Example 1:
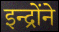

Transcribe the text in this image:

इन्द्रोंने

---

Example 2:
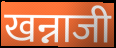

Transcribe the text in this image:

खन्नाजी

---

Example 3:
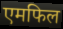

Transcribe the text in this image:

एमफिल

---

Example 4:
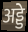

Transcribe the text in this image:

अड्डे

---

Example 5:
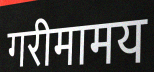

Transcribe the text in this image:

गरीमामय